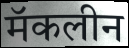
मॅकलीन